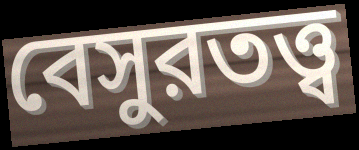
বেসুরতত্ত্ব